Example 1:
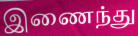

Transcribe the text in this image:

இணைந்து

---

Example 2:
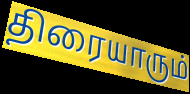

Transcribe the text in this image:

திரையாரும்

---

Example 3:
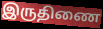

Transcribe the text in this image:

இருதிணை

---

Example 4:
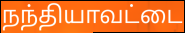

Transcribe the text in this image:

நந்தியாவட்டை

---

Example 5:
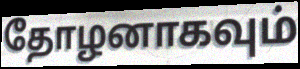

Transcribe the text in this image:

தோழனாகவும்